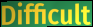
Difficult